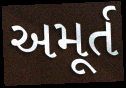
અમૂર્ત